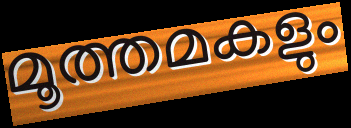
മൂത്തമകളും